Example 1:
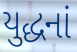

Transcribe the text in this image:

યુદ્ધનાં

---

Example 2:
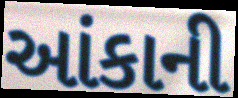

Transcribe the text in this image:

આંકાની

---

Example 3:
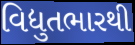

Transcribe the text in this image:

વિદ્યુતભારથી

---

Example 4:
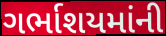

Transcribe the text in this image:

ગર્ભાશયમાંની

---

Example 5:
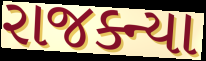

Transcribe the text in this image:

રાજક્ન્યા